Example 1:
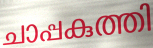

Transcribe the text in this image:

ചാപ്പകുത്തി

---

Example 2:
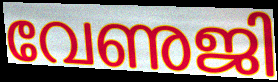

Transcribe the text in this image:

വേണുജി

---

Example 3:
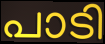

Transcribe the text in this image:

പാടി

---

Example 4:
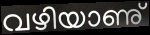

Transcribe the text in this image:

വഴിയാണു്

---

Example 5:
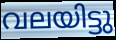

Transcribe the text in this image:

വലയിട്ടു